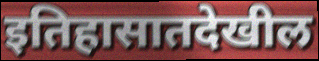
इतिहासातदेखील